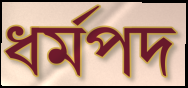
ধর্মপদ